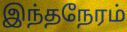
இந்தநேரம்